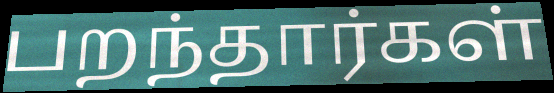
பறந்தார்கள்